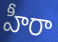
హీరా